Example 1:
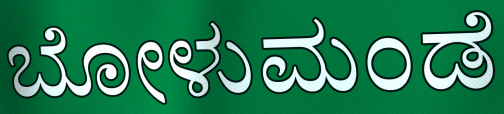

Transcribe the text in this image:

ಬೋಳುಮಂಡೆ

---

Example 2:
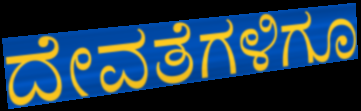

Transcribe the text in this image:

ದೇವತೆಗಳಿಗೂ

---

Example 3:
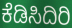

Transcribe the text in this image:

ಕೆಡಿಸಿದಿರಿ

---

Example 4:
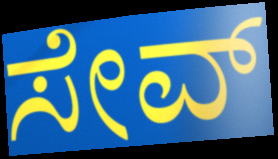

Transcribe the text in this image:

ಸೇವ್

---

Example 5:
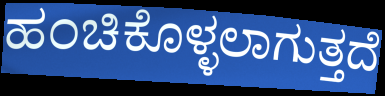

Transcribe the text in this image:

ಹಂಚಿಕೊಳ್ಳಲಾಗುತ್ತದೆ